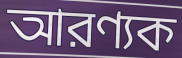
আরণ্যক